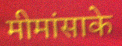
मीमांसाके